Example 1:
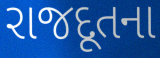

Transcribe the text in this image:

રાજદૂતના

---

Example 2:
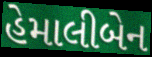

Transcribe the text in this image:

હેમાલીબેન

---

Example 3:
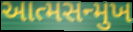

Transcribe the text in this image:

આત્મસન્મુખ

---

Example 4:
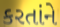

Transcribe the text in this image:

કરતાંને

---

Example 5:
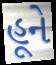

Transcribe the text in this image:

હૂને